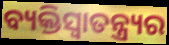
ବ୍ୟକ୍ତିସ୍ୱାତନ୍ତ୍ର୍ୟର